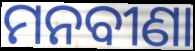
ମନବୀଣା